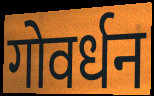
गोवर्धन